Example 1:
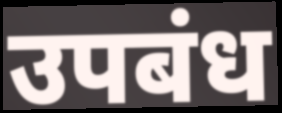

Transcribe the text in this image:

उपबंध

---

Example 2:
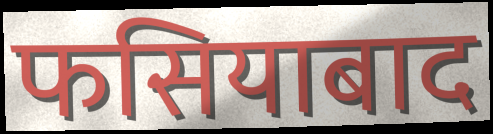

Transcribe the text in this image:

फसियाबाद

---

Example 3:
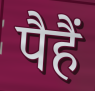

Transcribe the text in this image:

पैहैं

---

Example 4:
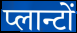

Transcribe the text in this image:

प्लान्टों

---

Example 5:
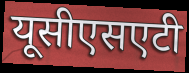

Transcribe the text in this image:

यूसीएसएटी